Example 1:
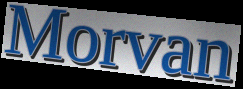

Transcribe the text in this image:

Morvan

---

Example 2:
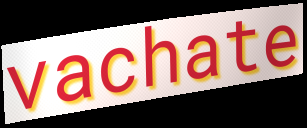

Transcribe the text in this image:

vachate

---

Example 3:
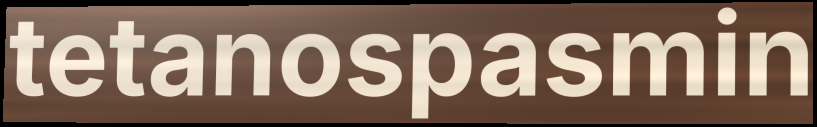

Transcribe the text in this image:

tetanospasmin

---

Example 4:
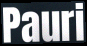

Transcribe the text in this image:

Pauri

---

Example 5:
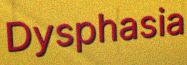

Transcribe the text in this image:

Dysphasia